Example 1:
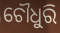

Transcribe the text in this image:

ଚୌଧୁରି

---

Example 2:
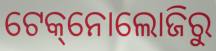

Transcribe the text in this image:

ଟେକ୍‌ନୋଲୋଜିରୁ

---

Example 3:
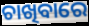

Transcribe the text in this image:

ଚାଖିବାରେ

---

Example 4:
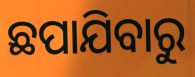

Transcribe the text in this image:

ଛପାଯିବାରୁ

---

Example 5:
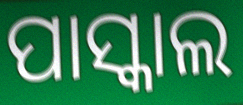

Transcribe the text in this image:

ପାସ୍କାଲ